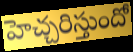
హెచ్చరిస్తుందో